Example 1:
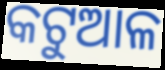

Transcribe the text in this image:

କଟୁଆଳ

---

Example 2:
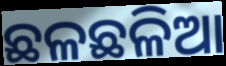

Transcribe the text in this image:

ଛଳଛଳିଆ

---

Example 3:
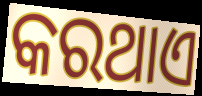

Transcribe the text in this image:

କରଥାଏ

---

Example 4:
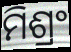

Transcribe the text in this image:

ମିଶ୍ରଂ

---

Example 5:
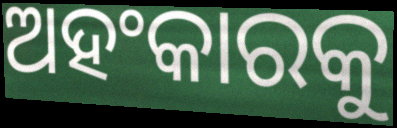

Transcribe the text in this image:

ଅହଂକାରକୁ